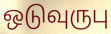
ஒடுவுருபு